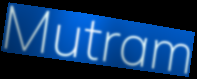
Mutram